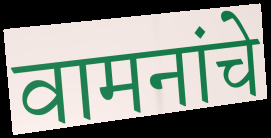
वामनांचे